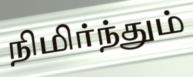
நிமிர்ந்தும்